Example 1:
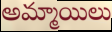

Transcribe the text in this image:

అమ్మాయిలు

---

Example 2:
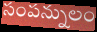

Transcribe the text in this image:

సంపన్నులం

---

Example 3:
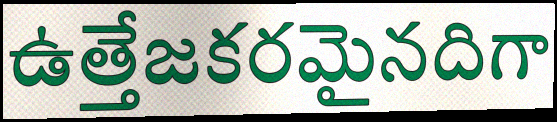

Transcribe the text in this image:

ఉత్తేజకరమైనదిగా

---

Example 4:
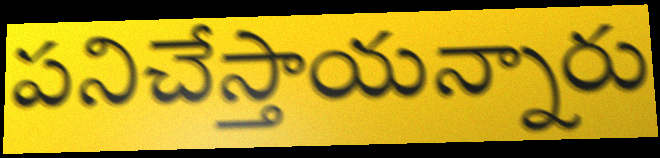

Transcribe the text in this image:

పనిచేస్తాయన్నారు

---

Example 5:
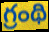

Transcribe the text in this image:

గ్రంథి